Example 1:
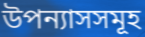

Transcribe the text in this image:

উপন্যাসসমূহ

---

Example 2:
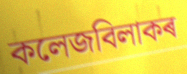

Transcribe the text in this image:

কলেজবিলাকৰ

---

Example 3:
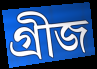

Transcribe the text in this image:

গ্ৰীজ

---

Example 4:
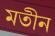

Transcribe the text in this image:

মতীন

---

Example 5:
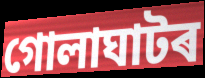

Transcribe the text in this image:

গোলাঘাটৰ